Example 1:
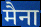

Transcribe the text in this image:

मैना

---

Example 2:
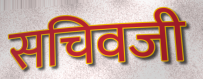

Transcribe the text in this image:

सचिवजी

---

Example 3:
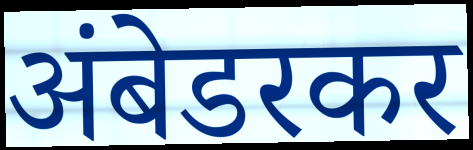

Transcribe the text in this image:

अंबेडरकर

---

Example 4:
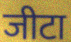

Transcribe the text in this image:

जीटा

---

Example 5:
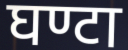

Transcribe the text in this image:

घण्टा